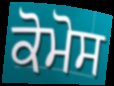
ਕੋਮੋਸ